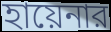
হায়েনার